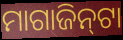
ମାଗାଜିନ୍‌ଟା